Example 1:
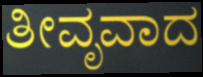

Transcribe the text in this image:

ತೀವೃವಾದ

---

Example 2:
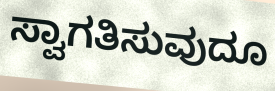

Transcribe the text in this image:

ಸ್ವಾಗತಿಸುವುದೂ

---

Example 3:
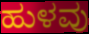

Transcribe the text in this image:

ಹುಳವು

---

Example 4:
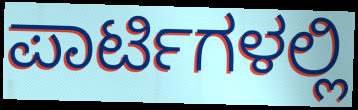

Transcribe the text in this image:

ಪಾರ್ಟಿಗಳಲ್ಲಿ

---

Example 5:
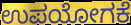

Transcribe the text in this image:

ಉಪಯೋಗಕೆ